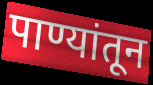
पाण्यांतून